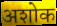
अशोक